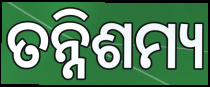
ତନ୍ନିଶମ୍ୟ